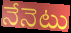
నేనెటు